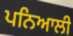
ਪਨਿਆਲੀ